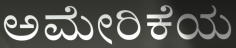
ಅಮೇರಿಕೆಯ